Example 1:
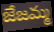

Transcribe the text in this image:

జేజమ్మ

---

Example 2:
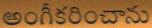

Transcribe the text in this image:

అంగీకరించాను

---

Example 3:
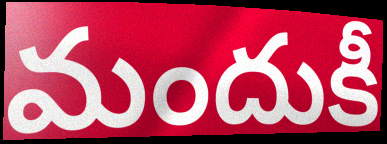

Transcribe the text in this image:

మందుకీ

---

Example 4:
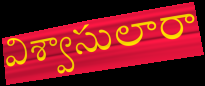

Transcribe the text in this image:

విశ్వాసులారా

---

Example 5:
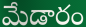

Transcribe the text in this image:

మేడారం